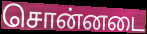
சொன்னடை